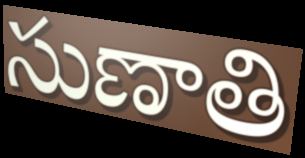
సుణాతి